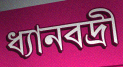
ধ্যানবদ্রী